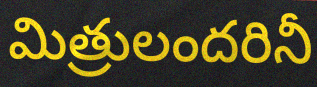
మిత్రులందరినీ